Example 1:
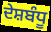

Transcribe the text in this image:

ਦੇਸ਼ਬੰਧੂ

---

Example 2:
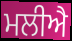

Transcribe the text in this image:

ਮਲੀਐ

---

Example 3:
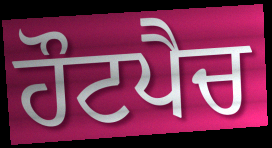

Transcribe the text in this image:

ਹੌਟਪੈਚ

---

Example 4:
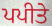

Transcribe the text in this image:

ਪਪੀਤੇ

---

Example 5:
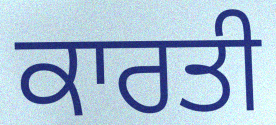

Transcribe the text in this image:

ਕਾਰਤੀ